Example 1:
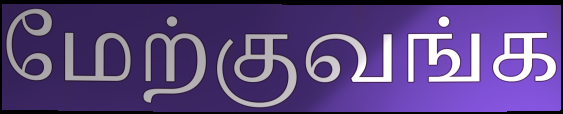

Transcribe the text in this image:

மேற்குவங்க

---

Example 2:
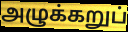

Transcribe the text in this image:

அழுக்கறுப்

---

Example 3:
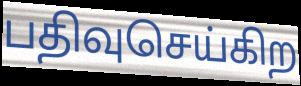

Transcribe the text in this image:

பதிவுசெய்கிற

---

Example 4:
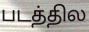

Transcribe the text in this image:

படத்தில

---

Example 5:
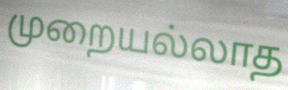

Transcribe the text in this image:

முறையல்லாத